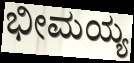
ಭೀಮಯ್ಯ